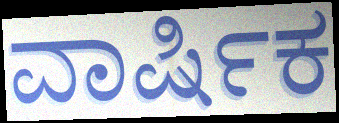
ವಾರ್ಷಿಕ